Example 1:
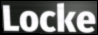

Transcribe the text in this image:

Locke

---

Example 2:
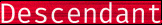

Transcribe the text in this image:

Descendant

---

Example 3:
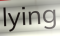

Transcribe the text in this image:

lying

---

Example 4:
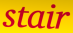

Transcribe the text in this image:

stair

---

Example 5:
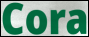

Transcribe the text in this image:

Cora